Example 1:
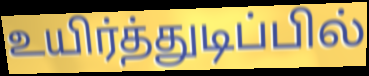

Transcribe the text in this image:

உயிர்த்துடிப்பில்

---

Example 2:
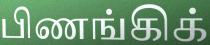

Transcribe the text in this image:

பிணங்கிக்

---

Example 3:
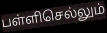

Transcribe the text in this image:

பள்ளிசெல்லும்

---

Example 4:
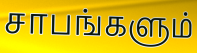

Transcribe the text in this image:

சாபங்களும்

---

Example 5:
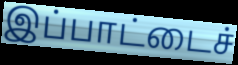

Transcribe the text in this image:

இப்பாட்டைச்